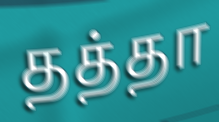
தத்தா